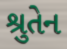
શ્રુતેન